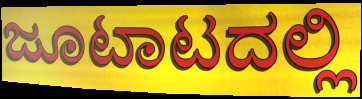
ಜೂಟಾಟದಲ್ಲಿ